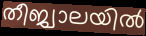
തീജ്വാലയിൽ